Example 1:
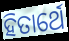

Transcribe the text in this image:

ହିତାର୍ଥେ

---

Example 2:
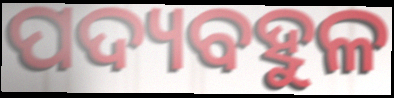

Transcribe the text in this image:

ପଦ୍ୟବହୁଳ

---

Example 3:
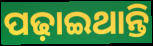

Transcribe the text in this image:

ପଢ଼ାଇଥାନ୍ତି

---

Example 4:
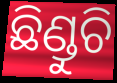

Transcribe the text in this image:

ଛିଣ୍ଡୁଚି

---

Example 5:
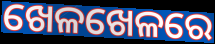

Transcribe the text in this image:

ଖେଳଖେଳରେ